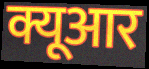
क्यूआर